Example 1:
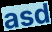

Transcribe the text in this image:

asd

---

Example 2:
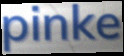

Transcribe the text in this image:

pinke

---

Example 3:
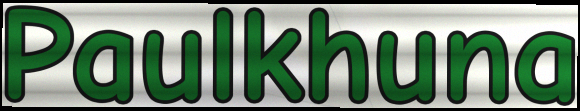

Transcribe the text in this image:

Paulkhuna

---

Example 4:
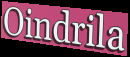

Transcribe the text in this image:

Oindrila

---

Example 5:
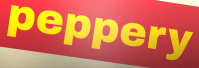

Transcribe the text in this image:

peppery